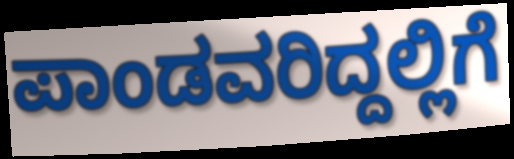
ಪಾಂಡವರಿದ್ದಲ್ಲಿಗೆ